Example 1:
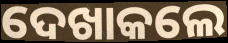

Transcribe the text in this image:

ଦେଖାକଲେ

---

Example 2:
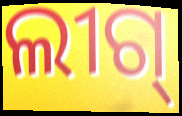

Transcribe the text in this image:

ଲୀଗ୍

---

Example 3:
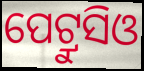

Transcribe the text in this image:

ପେଟ୍ରୁସିଓ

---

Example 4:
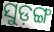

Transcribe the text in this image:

ସୁଡ଼ଙ୍ଗ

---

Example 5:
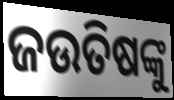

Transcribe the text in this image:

ଜଉତିଷଙ୍କୁ